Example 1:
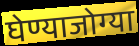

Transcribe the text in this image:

घेण्याजोग्या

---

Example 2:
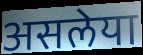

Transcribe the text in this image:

असलेया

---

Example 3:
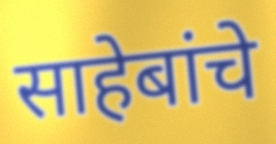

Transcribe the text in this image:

साहेबांचे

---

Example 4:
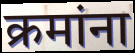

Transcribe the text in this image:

क्रमांना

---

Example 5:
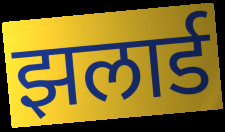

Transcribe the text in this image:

झलार्ड